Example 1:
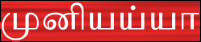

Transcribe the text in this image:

முனியய்யா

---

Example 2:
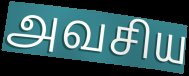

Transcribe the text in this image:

அவசிய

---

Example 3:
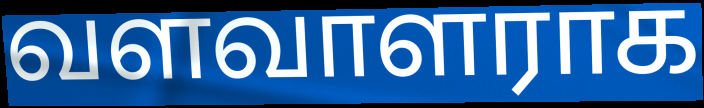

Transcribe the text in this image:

வளவாளராக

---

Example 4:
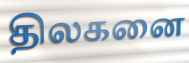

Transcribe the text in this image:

திலகனை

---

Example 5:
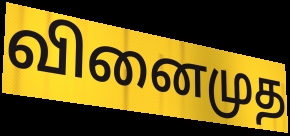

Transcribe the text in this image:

வினைமுத